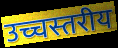
उच्चस्तरीय